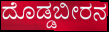
ದೊಡ್ಡಬೀರನ